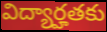
విద్యార్హతకు